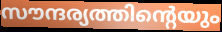
സൗന്ദര്യത്തിന്റെയും